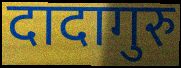
दादागुरु